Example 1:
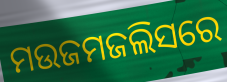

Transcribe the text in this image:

ମଉଜମଜଲିସରେ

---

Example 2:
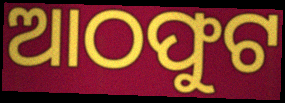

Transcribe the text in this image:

ଆଠଫୁଟ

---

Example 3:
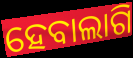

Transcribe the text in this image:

ହେବାଲାଗି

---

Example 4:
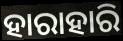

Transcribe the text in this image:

ହାରାହାରି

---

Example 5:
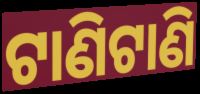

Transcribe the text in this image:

ଟାଣିଟାଣି